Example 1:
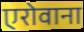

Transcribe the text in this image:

एरोवाना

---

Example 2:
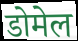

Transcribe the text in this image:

डोमेल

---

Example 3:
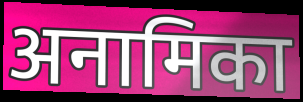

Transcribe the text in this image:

अनामिका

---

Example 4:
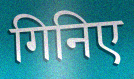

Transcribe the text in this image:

गिनिए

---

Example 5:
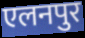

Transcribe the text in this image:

एलनपुर